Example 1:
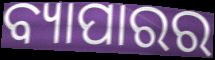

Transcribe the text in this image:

ବ୍ୟାପାରର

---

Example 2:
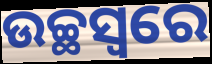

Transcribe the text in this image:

ଉଚ୍ଛସ୍ୱରେ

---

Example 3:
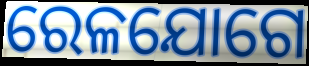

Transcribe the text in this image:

ରେଳଯୋଗେ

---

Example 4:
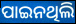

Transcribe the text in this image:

ପାଇନଥିଲି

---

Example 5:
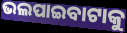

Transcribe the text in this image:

ଭଲପାଇବାଟାକୁ